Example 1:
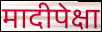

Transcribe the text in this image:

मादीपेक्षा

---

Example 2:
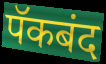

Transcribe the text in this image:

पॅकबंद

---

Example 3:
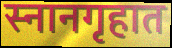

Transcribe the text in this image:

स्नानगृहात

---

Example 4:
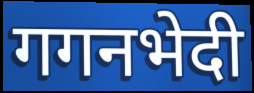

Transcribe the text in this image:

गगनभेदी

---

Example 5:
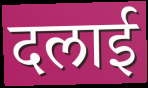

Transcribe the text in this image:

दलाई